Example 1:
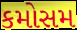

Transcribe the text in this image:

કમોસમ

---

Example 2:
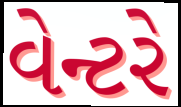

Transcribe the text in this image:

વેન્ટરે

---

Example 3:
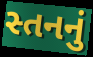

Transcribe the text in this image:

સ્તનનું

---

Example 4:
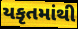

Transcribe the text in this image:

યકૃતમાંથી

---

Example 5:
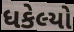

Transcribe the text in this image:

ધકેલ્યો